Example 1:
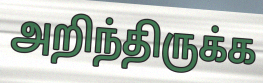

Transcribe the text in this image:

அறிந்திருக்க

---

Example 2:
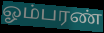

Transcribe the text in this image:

ஓம்பரண்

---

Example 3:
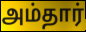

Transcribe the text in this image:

அம்தார்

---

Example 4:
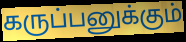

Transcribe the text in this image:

கருப்பனுக்கும்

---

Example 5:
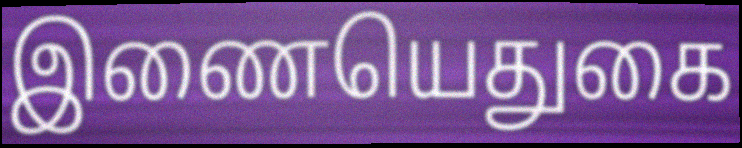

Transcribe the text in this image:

இணையெதுகை